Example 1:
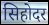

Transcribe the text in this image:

सिहोदर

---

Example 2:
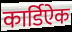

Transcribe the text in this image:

कार्डिऐक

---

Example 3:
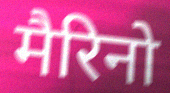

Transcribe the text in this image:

मैरिनो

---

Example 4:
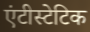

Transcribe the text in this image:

एंटीस्टेटिक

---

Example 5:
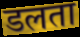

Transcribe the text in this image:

डलता